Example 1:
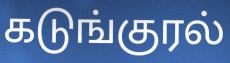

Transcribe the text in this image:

கடுங்குரல்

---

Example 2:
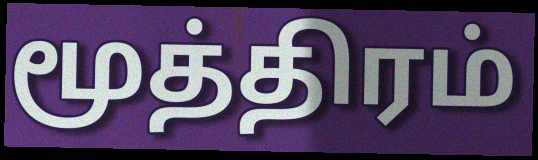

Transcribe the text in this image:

மூத்திரம்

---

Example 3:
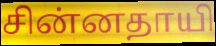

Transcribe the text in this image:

சின்னதாயி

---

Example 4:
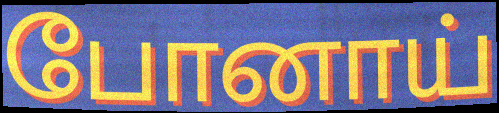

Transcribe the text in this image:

போனாய்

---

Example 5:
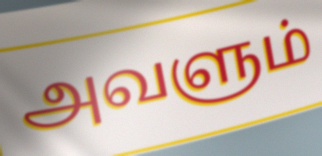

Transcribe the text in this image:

அவளும்